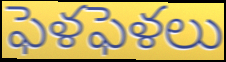
ఫెళఫెళలు